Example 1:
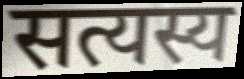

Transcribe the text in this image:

सत्यस्य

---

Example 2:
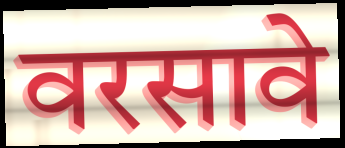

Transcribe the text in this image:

वरसावे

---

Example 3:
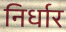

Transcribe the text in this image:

निर्धार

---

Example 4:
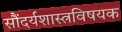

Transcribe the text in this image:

सौंदर्यशास्त्रविषयक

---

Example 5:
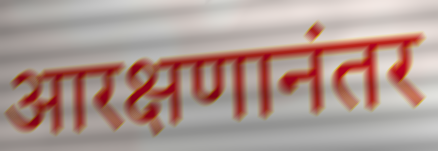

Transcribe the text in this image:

आरक्षणानंतर